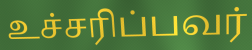
உச்சரிப்பவர்